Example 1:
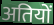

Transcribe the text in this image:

अतियों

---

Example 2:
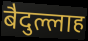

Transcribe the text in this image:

बैदुल्लाह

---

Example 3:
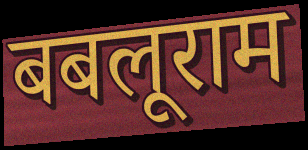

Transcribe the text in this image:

बबलूराम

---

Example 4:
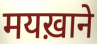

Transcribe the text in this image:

मयख़ाने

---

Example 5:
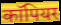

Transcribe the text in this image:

कॉपियर